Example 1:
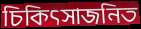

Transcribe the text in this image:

চিকিৎসাজনিত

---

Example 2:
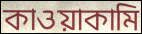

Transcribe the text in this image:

কাওয়াকামি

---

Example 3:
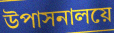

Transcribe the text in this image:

উপাসনালয়ে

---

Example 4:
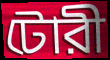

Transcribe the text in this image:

টোরী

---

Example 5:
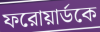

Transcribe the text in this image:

ফরোয়ার্ডকে